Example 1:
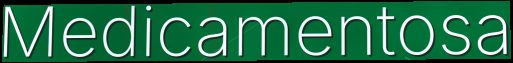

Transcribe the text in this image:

Medicamentosa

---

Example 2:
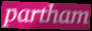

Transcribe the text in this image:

partham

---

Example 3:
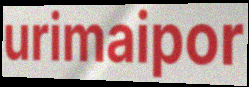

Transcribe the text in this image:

urimaipor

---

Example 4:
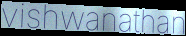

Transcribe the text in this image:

vishwanathan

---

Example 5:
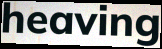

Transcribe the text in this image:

heaving